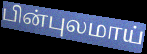
பின்புலமாய்